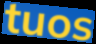
tuos